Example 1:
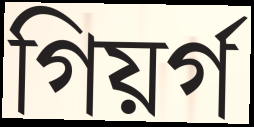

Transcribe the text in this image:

গিয়ৰ্গ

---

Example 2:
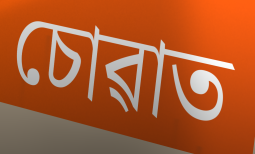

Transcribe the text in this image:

চোৱাত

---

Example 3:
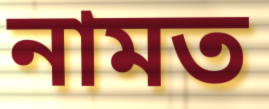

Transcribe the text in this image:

নামত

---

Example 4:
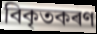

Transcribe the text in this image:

বিকৃতকৰণ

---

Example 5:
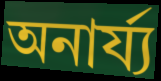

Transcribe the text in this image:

অনাৰ্য্য